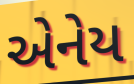
એનેય